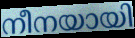
നീനയായി